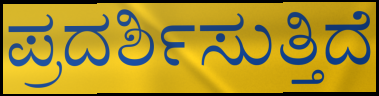
ಪ್ರದರ್ಶಿಸುತ್ತಿದೆ